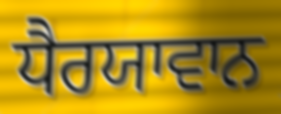
ਧੈਰਯਾਵਾਨ